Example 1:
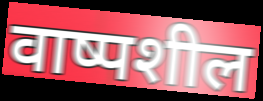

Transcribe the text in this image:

वाष्पशील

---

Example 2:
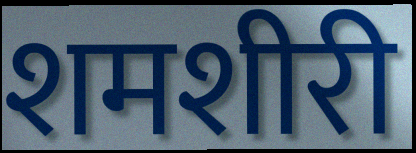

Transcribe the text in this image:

शमशीरी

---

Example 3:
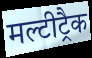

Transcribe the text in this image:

मल्टीट्रैक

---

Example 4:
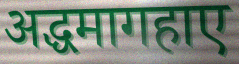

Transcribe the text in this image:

अद्धमागहाए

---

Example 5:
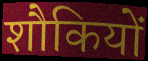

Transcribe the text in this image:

शौकियों